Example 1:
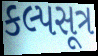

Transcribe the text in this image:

કલ્પસૂત્ર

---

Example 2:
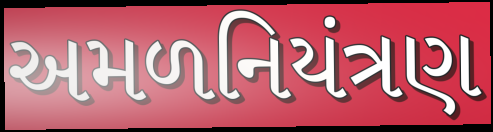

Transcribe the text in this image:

અમળનિયંત્રણ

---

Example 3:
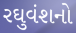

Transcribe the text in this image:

રઘુવંશનો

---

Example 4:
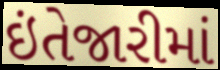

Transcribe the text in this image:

ઇંતેજારીમાં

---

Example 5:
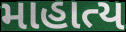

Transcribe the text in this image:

માહાત્ય